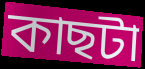
কাছটা